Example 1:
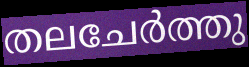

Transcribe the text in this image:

തലചേർത്തു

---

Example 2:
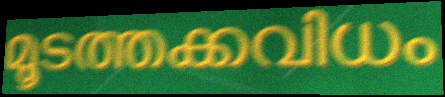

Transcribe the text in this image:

മൂടത്തക്കവിധം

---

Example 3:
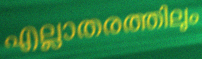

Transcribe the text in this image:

എല്ലാതരത്തിലും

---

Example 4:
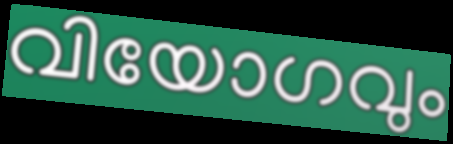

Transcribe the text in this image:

വിയോഗവും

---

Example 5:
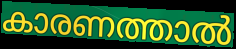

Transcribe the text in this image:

കാരണത്താൽ